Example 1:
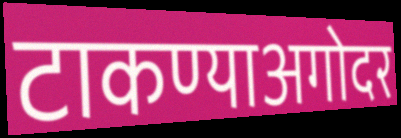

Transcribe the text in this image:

टाकण्याअगोदर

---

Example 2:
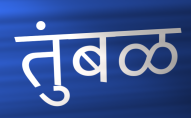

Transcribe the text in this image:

तुंबळ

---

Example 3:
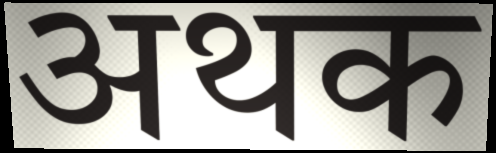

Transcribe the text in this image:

अथक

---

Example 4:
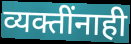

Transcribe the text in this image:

व्यक्तींनाही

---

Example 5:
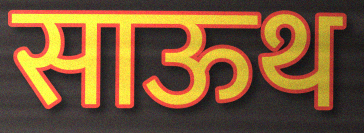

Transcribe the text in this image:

साऊथ